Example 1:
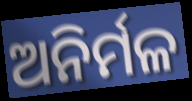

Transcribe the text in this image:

ଅନିର୍ମଳ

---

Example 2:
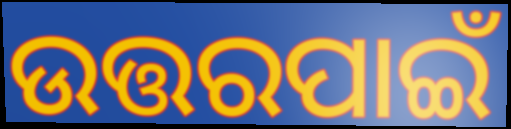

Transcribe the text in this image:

ଉତ୍ତରପାଇଁ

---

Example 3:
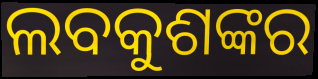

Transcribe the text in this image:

ଲବକୁଶଙ୍କର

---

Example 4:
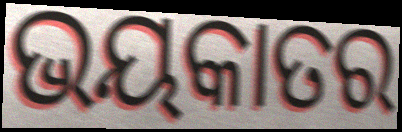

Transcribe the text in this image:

ଭୟକାତର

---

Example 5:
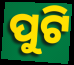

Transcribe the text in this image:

ପୁଟି